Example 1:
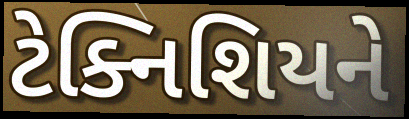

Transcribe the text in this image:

ટેક્નિશિયને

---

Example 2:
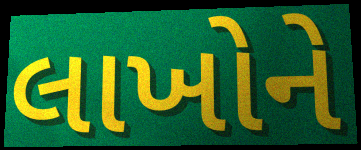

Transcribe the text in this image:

લાખોને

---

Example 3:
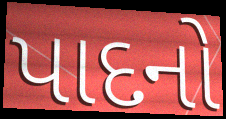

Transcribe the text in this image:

પાદનો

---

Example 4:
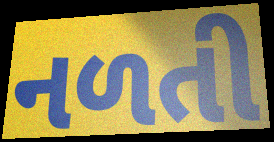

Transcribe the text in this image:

નળતી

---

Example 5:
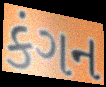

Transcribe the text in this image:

કંગન